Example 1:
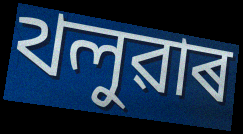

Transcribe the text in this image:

থলুৱাৰ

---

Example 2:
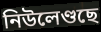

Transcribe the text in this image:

নিউলেণ্ডছে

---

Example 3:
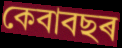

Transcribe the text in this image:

কেবাবছৰ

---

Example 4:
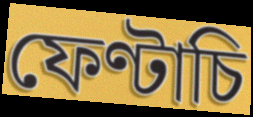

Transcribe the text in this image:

ফেণ্টাচি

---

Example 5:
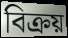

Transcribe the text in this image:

বিক্ৰয়